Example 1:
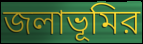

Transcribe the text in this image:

জলাভূমির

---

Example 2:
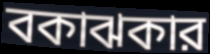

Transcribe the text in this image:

বকাঝকার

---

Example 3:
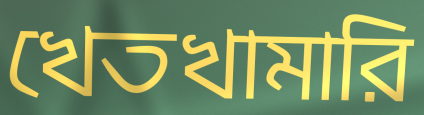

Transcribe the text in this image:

খেতখামারি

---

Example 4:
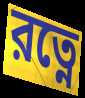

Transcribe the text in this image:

রত্নে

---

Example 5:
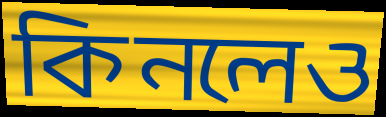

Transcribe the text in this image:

কিনলেও